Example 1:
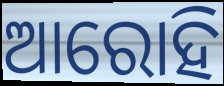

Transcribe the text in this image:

ଆରୋହି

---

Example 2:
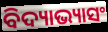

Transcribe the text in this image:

ବିଦ୍ୟାଭ୍ୟାସଂ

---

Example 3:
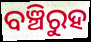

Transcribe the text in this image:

ବଞ୍ଚିରୁହ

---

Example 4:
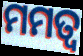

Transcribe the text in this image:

ମମତ୍ୱ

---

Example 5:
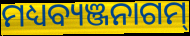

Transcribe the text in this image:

ମଧ୍ୟବ୍ୟଞ୍ଜନାଗମ୍